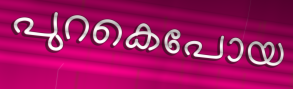
പുറകെപോയ